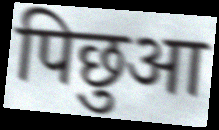
पिछुआ